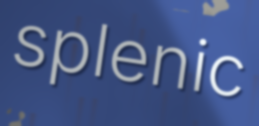
splenic